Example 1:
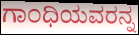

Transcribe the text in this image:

ಗಾಂಧಿಯವರನ್ನ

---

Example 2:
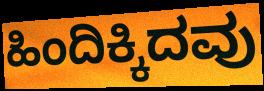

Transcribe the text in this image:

ಹಿಂದಿಕ್ಕಿದವು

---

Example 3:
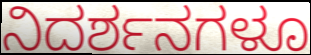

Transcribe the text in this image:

ನಿದರ್ಶನಗಳೂ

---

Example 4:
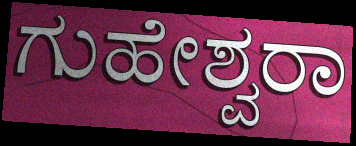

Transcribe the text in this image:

ಗುಹೇಶ್ವರಾ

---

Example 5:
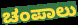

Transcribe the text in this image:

ಚಂಪಾಲು